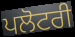
ਪਲੋਟਰੀ